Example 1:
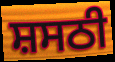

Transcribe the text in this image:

ਸ਼ਸਠੀ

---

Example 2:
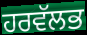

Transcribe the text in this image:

ਹਰਵੱਲਭ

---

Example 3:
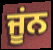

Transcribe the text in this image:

ਜੂਂਨ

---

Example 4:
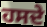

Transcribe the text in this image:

ਹਸਦੇ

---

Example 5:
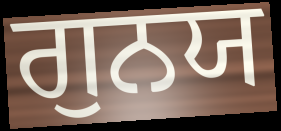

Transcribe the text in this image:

ਗੁਨਯ